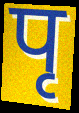
पृ